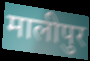
मालीपुर